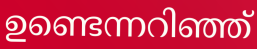
ഉണ്ടെന്നറിഞ്ഞ്